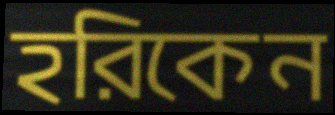
হরিকেন